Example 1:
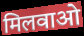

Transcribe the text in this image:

मिलवाओ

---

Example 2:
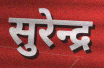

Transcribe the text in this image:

सुरेन्द्र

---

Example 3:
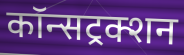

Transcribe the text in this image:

कॉन्सट्रक्शन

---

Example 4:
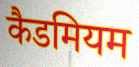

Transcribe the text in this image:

कैडमियम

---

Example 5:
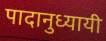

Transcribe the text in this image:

पादानुध्यायी